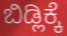
ಬಿಡ್ಲಿಕ್ಕೆ